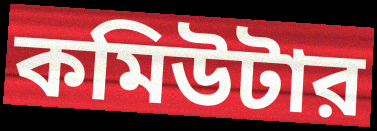
কমিউটার